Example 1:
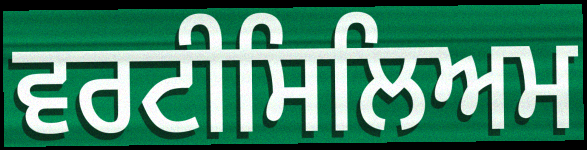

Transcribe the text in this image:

ਵਰਟੀਸਿਲਿਅਮ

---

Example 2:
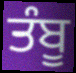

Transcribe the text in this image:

ਤੰਬੂ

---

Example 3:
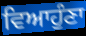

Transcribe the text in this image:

ਵਿਆਹੁੰਣਾ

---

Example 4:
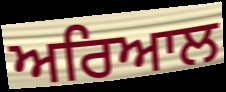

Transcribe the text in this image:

ਅਰਿਆਲ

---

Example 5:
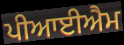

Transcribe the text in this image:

ਪੀਆਈਐਮ